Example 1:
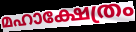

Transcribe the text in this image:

മഹാക്ഷേത്രം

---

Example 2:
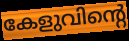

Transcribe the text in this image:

കേളുവിന്റെ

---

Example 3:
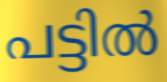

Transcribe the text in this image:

പട്ടിൽ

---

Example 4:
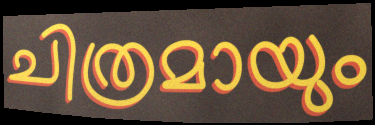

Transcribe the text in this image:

ചിത്രമായും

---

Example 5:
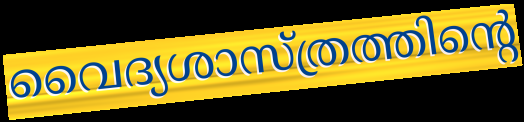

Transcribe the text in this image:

വൈദ്യശാസ്ത്രത്തിന്റെ